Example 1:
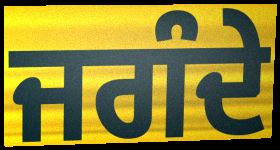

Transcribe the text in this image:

ਜਗੰਦੇ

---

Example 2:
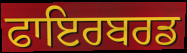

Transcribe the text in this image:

ਫਾਇਰਬਰਡ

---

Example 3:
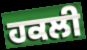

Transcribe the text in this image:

ਹਕਲੀ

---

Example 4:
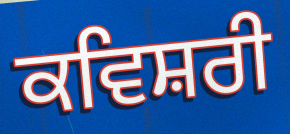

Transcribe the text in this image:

ਕਵਿਸ਼ਰੀ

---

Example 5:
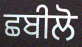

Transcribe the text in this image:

ਛਬੀਲੋ